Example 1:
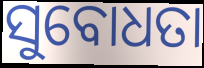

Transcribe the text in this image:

ସୁବୋଧତା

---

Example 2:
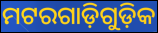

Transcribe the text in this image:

ମଟରଗାଡ଼ିଗୁଡ଼ିକ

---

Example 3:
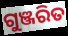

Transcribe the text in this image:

ଗୁଞ୍ଜରିତ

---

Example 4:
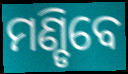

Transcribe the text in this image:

ମଣ୍ଡିବେ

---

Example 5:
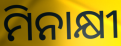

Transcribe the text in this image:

ମିନାକ୍ଷୀ